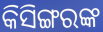
କିସିଙ୍ଗରଙ୍କ